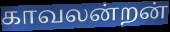
காவலன்றன்